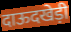
दाऊदखेड़ी